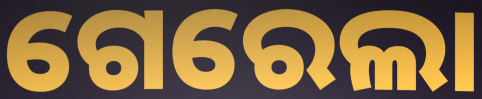
ଗେରେଲା